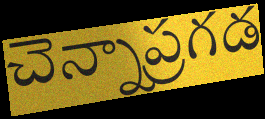
చెన్నాప్రగడ